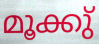
മൂക്കു്